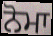
ਨੋਮਾ